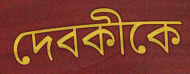
দেবকীকে